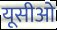
यूसीओ